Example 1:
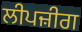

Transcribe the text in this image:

ਲੀਪਜ਼ੀਗ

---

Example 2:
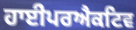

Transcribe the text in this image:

ਹਾਈਪਰਐਕਟਿਵ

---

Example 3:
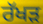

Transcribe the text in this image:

ਰੱਖੜ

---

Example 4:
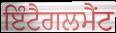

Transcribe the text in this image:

ਇੰਟੈਗਲਮੈਂਟ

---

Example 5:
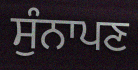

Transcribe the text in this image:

ਸੁੰਨਾਪਣ